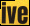
ive